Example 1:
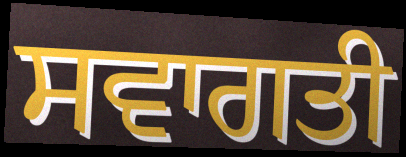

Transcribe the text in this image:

ਸਵਾਗਤੀ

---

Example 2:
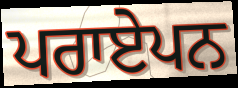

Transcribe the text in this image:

ਪਰਾਏਪਨ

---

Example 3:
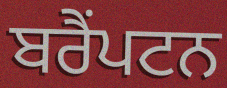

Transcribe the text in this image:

ਬਰੈਂਪਟਨ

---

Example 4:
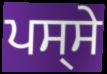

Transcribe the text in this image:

ਪਸ੍ਸੇ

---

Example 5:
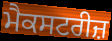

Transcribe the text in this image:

ਮੈਕਸਟਰੀਜ਼